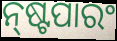
ନ୍‌ଷ୍ଟପାରଂ